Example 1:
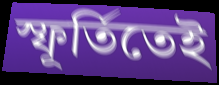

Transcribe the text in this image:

স্ফূর্তিতেই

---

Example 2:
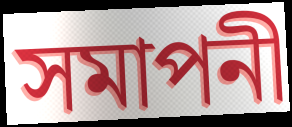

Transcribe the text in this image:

সমাপনী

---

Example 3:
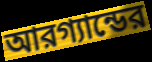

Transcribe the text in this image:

আরগ্যান্ডের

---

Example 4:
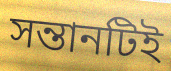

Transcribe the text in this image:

সন্তানটিই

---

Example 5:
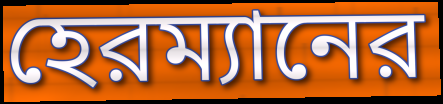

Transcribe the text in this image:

হেরম্যানের